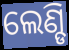
ଲେଣ୍ଡି